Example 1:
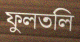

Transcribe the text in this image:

ফুলতলি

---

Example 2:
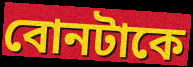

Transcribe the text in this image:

বোনটাকে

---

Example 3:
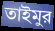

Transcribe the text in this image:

তাইমুর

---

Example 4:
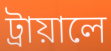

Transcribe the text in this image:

ট্রায়ালে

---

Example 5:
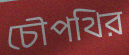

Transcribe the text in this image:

চৌপথির